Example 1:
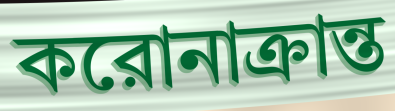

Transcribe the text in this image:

করোনাক্রান্ত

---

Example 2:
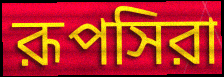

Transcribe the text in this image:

রূপসিরা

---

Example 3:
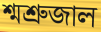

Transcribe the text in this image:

শ্মশ্রুজাল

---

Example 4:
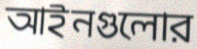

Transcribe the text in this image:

আইনগুলোর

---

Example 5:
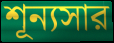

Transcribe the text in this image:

শূন্যসার